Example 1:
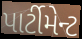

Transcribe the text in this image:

પાર્ટીમેન્ટ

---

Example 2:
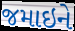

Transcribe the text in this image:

જમાઇને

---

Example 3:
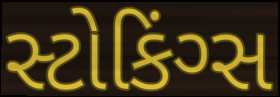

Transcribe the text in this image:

સ્ટોકિંગ્સ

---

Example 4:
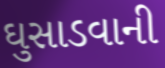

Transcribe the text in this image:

ઘુસાડવાની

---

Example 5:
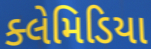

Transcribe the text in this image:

ક્લેમિડિયા